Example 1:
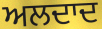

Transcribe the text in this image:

ਅਲਦਾਦ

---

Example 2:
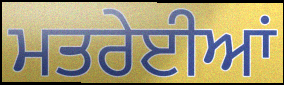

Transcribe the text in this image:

ਮਤਰੇਈਆਂ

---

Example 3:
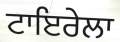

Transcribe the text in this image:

ਟਾਇਰੇਲਾ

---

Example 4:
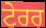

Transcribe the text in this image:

ਟੇਰਰ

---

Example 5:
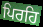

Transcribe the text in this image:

ਪਿਰਹਿ